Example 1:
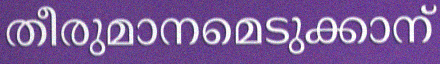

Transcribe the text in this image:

തീരുമാനമെടുക്കാന്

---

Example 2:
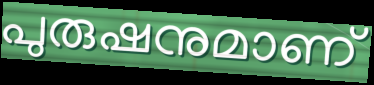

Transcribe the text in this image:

പുരുഷനുമാണ്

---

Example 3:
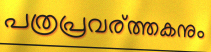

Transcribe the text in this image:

പത്രപ്രവര്ത്തകനും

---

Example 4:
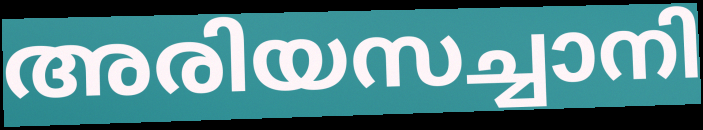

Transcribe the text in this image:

അരിയസച്ചാനി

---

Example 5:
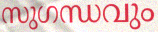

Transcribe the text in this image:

സുഗന്ധവും